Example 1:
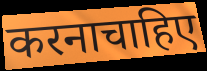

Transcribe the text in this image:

करनाचाहिए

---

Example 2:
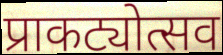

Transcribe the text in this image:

प्राकट्योत्सव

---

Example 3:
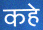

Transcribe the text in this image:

कहे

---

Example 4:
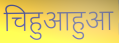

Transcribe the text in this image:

चिहुआहुआ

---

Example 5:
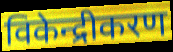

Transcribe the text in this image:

विकेन्द्रीकरण